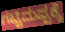
ಗಟ್ಟಿದುಪ್ಪಕ್ಕೆ